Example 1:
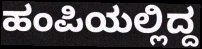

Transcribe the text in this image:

ಹಂಪಿಯಲ್ಲಿದ್ದ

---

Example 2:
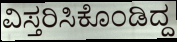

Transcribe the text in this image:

ವಿಸ್ತರಿಸಿಕೊಂಡಿದ್ದ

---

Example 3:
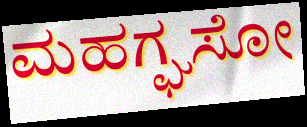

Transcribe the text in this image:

ಮಹಗ್ಘಸೋ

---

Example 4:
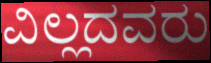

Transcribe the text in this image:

ವಿಲ್ಲದವರು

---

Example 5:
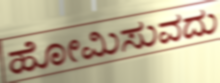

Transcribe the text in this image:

ಹೋಮಿಸುವದು